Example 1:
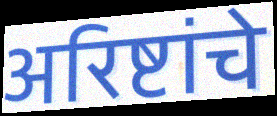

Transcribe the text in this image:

अरिष्टांचे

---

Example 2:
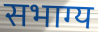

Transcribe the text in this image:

सभाग्य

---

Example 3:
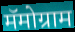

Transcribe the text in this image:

मॅमोग्राम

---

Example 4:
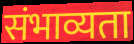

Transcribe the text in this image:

संभाव्यता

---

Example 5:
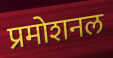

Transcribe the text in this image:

प्रमोशनल